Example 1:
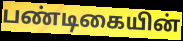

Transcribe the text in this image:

பண்டிகையின்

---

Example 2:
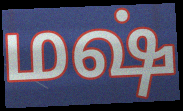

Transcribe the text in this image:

மஷ்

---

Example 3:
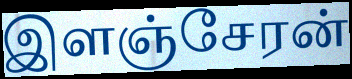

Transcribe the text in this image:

இளஞ்சேரன்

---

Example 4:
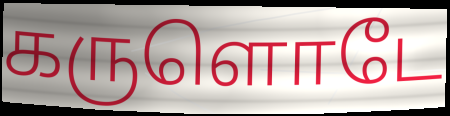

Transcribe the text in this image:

கருளொடே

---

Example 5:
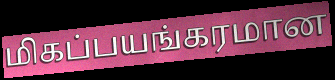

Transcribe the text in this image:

மிகப்பயங்கரமான